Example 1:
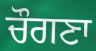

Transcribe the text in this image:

ਚੌਗਣਾ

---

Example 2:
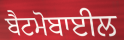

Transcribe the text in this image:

ਬੈਟਮੋਬਾਈਲ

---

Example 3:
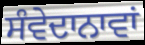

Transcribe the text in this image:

ਸੰਵੇਦਾਨਾਵਾਂ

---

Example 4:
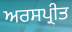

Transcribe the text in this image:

ਅਰਸਪ੍ਰੀਤ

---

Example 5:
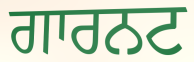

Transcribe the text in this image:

ਗਾਰਨਟ